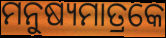
ମନୁଷ୍ୟମାତ୍ରକେ